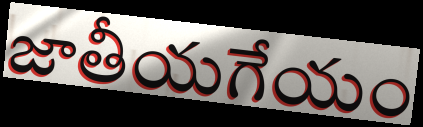
జాతీయగేయం